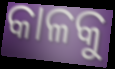
କାଳକୁ